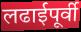
लढाईपूर्वी